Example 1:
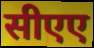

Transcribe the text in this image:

सीएए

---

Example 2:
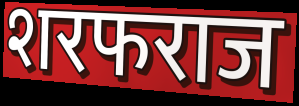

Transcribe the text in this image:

शरफराज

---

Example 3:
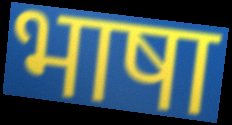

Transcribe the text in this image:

भाषा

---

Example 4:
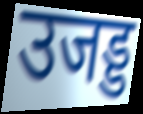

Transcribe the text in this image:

उजड्ड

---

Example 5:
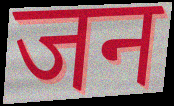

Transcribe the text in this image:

जन